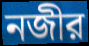
নজীর